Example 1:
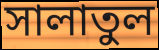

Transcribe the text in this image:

সালাতুল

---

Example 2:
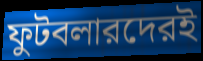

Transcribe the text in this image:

ফুটবলারদেরই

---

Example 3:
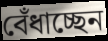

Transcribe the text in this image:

বেঁধাচ্ছেন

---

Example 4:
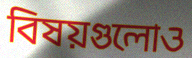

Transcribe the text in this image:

বিষয়গুলোও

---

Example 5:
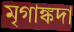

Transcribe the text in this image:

মৃগাঙ্কদা